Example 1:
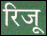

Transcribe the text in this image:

रिजू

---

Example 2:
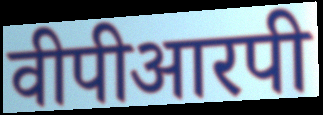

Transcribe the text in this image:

वीपीआरपी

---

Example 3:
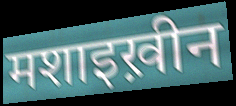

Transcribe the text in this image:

मशाइख़ीन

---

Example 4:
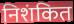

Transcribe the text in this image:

निशंकित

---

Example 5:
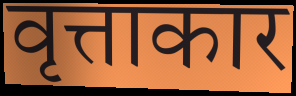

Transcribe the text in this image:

वृत्ताकार